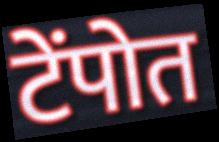
टेंपोत